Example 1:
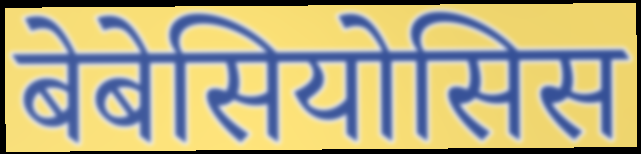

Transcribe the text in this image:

बेबेसियोसिस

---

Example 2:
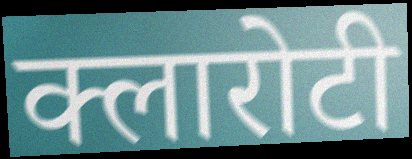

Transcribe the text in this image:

क्लारोटी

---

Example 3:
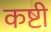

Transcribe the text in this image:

कष्टी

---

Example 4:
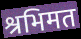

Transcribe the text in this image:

श्रभिमत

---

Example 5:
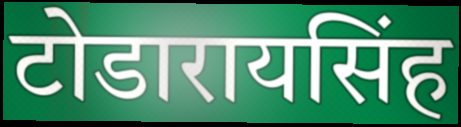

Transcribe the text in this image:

टोडारायसिंह